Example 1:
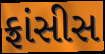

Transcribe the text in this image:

ફ્રાંસીસ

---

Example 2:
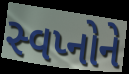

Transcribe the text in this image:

સ્વપ્નોને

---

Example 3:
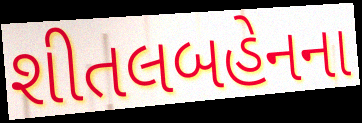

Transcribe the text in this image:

શીતલબહેનના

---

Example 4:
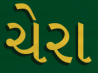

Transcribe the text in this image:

ચેરા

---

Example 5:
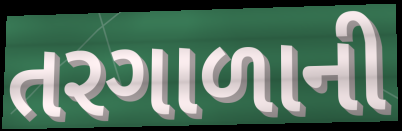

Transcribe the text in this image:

તરગાળાની